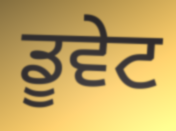
ਡੂਵੇਟ